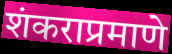
शंकराप्रमाणे